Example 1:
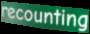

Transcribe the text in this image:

recounting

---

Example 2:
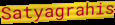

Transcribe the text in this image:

Satyagrahis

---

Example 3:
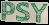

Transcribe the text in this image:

PSY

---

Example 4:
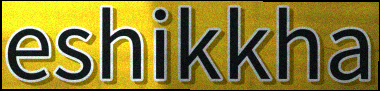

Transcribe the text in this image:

eshikkha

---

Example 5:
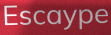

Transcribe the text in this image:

Escaype